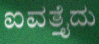
ಐವತ್ತೈದು